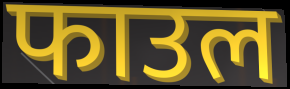
फाउल